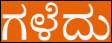
ಗಳೆದು